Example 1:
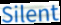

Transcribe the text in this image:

Silent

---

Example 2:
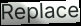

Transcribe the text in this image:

Replace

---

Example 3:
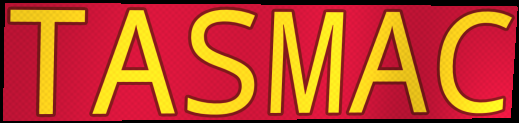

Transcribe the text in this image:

TASMAC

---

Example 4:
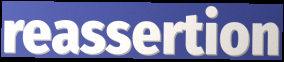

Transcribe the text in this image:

reassertion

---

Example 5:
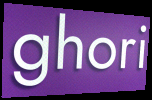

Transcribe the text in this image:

ghori